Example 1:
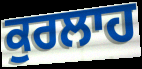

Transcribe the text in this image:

ਕੁਰਲਾਹ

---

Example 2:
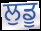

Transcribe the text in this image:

ਲੁਡੂ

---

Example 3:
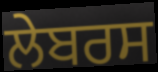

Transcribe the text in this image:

ਲੇਬਰਸ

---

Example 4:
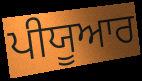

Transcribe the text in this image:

ਪੀਯੂਆਰ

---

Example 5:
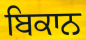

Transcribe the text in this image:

ਬਿਕਾਨ